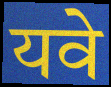
यवे